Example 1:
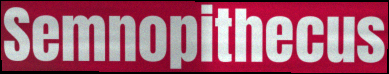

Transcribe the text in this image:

Semnopithecus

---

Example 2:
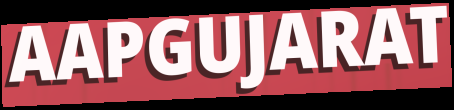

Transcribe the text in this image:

AAPGUJARAT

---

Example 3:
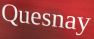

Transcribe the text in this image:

Quesnay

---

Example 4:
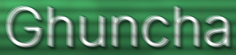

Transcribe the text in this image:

Ghuncha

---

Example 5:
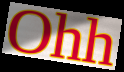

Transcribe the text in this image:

Ohh